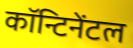
कॉन्टिनेंटल